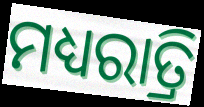
ମଧ୍ଯରାତ୍ରି